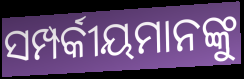
ସମ୍ପର୍କୀୟମାନଙ୍କୁ